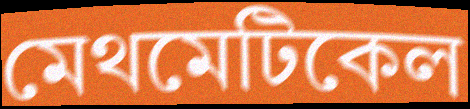
মেথমেটিকেল